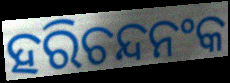
ହରିଚନ୍ଦନଂକ